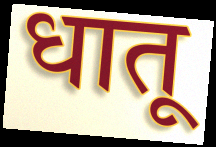
धातू